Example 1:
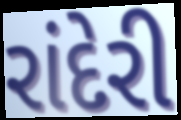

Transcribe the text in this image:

રાંદેરી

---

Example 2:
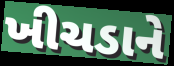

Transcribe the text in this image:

ખીચડાને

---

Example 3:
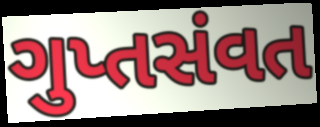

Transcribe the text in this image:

ગુપ્તસંવત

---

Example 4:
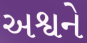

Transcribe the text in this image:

અશ્વને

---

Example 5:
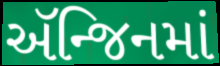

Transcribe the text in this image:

ઍન્જિનમાં